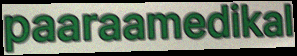
paaraamedikal